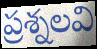
ప్రశ్నలవి